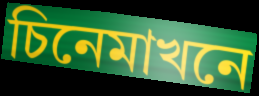
চিনেমাখনে